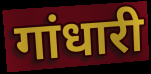
गांधारी